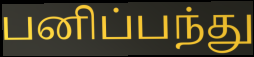
பனிப்பந்து